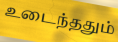
உடைந்ததும்